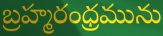
బ్రహ్మరంధ్రమును